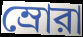
ম্রোরা